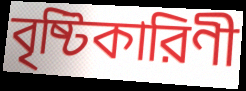
বৃষ্টিকারিণী